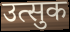
उत्सुक